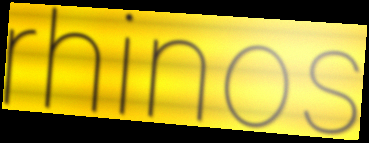
rhinos